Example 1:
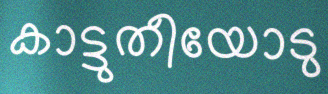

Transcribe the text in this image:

കാട്ടുതീയോടു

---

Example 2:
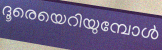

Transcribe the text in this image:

ദൂരെയെറിയുമ്പോൾ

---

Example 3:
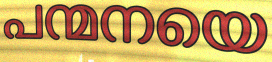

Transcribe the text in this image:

പന്മനയെ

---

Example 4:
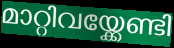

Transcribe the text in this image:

മാറ്റിവയ്ക്കേണ്ടി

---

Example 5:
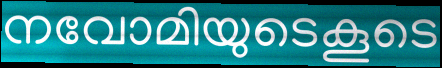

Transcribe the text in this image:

നവോമിയുടെകൂടെ